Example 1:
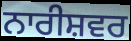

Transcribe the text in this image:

ਨਾਰੀਸ਼ਵਰ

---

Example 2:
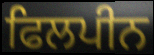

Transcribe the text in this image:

ਫਿਲਪੀਨ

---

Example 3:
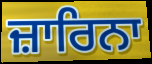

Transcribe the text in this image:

ਜ਼ਾਰਿਨਾ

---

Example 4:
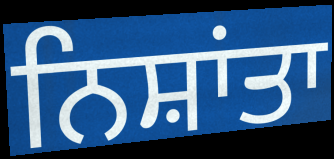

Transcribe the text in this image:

ਨਿਸ਼ਾਂਤਾ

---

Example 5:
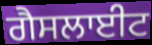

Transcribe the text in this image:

ਗੈਸਲਾਈਟ